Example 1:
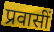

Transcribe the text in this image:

प्रवासीं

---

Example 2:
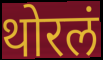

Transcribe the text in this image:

थोरलं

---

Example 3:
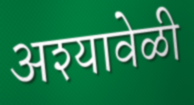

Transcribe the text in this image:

अश्यावेळी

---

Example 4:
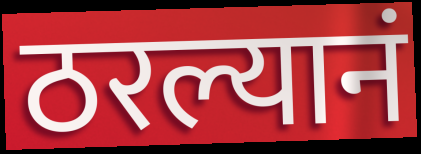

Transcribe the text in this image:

ठरल्यानं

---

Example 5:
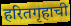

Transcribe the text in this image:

हरितगृहाची